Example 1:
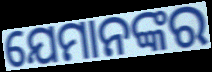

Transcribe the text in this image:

ଯେମାନଙ୍କର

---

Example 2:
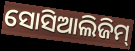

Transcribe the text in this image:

ସୋସିଆଲିଜିମ୍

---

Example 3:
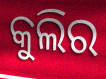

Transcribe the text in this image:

କୁଲିର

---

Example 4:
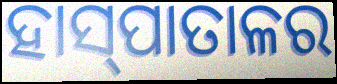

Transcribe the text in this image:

ହାସ୍‍ପାତାଳର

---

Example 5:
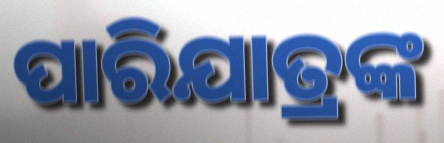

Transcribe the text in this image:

ପାରିଯାତ୍ରଙ୍କ